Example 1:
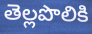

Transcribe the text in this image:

తెల్లపొలికి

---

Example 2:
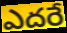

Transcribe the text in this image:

ఎదరే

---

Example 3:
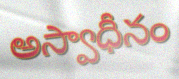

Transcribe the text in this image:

అస్వాధీనం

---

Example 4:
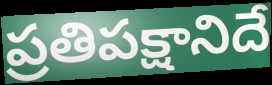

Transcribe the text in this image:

ప్రతిపక్షానిదే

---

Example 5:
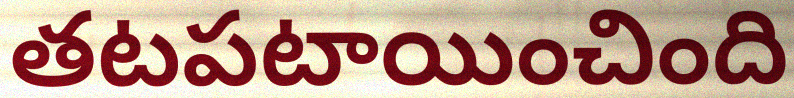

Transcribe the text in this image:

తటపటాయించింది